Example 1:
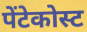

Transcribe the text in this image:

पेंटेकोस्ट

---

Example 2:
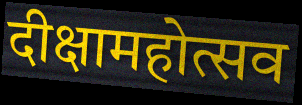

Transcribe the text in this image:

दीक्षामहोत्सव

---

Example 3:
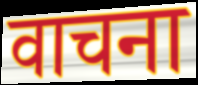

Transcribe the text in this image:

वाचना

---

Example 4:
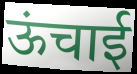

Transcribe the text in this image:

ऊंचाई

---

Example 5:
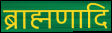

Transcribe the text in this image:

ब्राह्मणादि